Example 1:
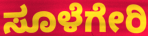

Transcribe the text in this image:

ಸೂಳೆಗೇರಿ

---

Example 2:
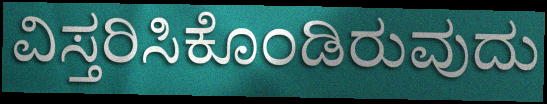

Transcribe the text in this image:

ವಿಸ್ತರಿಸಿಕೊಂಡಿರುವುದು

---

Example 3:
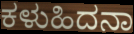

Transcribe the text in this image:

ಕಳುಹಿದನಾ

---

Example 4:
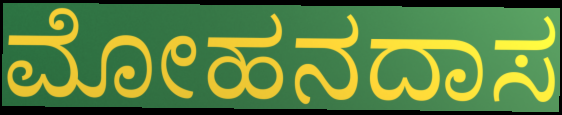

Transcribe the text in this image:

ಮೋಹನದಾಸ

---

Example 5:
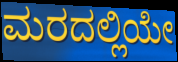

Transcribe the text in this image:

ಮರದಲ್ಲಿಯೇ